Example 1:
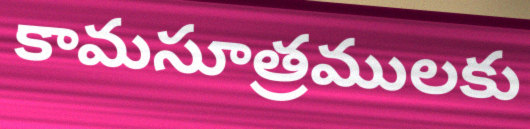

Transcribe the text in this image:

కామసూత్రములకు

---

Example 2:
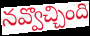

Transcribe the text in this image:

నవ్వొచ్చింది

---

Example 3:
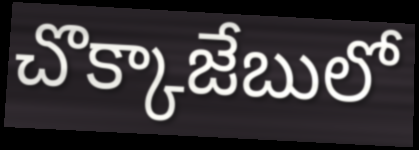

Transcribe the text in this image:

చొక్కాజేబులో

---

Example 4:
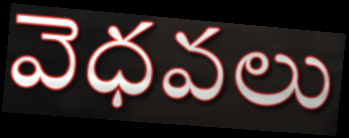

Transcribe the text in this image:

వెధవలు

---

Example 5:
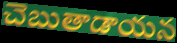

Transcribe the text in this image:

చెబుతాడాయన